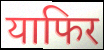
याफिर